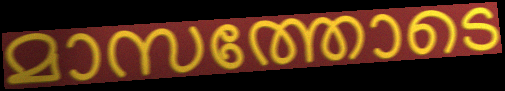
മാസത്തോടെ